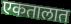
एकतालात